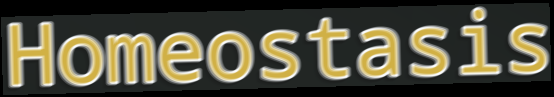
Homeostasis